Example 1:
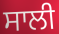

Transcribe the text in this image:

ਸਾਲੀ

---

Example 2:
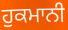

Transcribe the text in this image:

ਹੁਕਮਾਨੀ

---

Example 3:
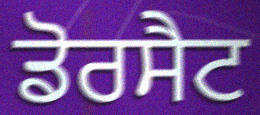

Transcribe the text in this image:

ਡੋਰਸੈਟ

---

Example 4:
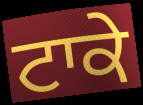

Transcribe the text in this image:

ਟਾਕੇ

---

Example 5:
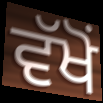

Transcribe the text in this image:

ਵੱਖੋਂ